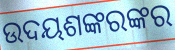
ଉଦୟଶଙ୍କରଙ୍କର